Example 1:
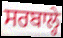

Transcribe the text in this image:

ਸਰਬਾਲ੍ਹੇ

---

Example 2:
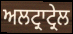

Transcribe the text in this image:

ਅਲਟ੍ਰਾਟ੍ਰੇਲ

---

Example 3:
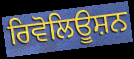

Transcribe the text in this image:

ਰਿਵੋਲਿਊਸ਼ਨ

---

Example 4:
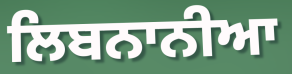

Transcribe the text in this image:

ਲਿਬਨਾਨੀਆ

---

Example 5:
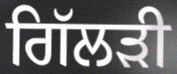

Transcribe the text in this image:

ਗਿੱਲੜੀ